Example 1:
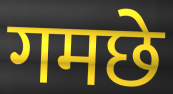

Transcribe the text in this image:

गमछे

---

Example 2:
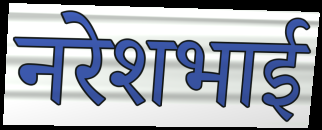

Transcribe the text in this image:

नरेशभाई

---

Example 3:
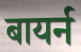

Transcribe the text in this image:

बायर्न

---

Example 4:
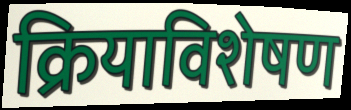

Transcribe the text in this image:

क्रियाविशेषण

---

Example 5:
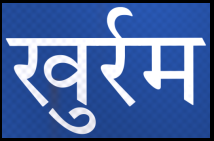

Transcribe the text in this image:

खुर्रम